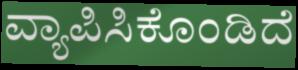
ವ್ಯಾಪಿಸಿಕೊಂಡಿದೆ